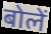
बोलें